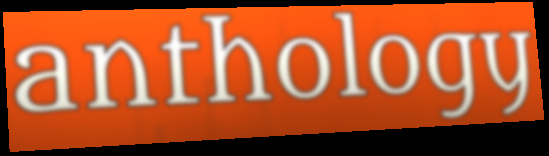
anthology